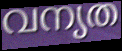
വന്യത